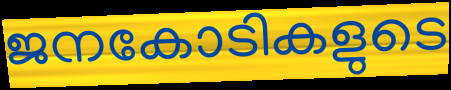
ജനകോടികളുടെ